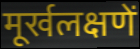
मूर्खलक्षणें